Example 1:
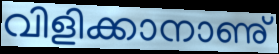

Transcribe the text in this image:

വിളിക്കാനാണു്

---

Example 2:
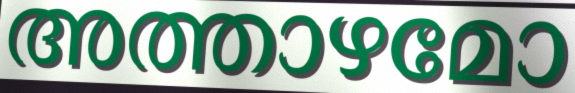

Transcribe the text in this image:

അത്താഴമോ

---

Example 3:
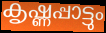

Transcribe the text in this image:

കൃഷ്ണപ്പാട്ടും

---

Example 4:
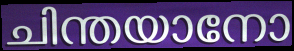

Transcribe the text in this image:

ചിന്തയാനോ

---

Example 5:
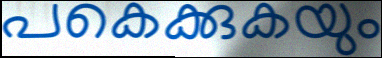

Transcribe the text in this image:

പകെക്കുകയും